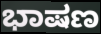
ಭಾಷಣ